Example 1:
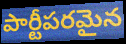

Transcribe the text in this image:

పార్టీపరమైన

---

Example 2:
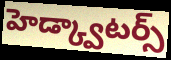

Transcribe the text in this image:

హెడ్క్వాటర్స్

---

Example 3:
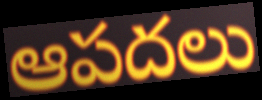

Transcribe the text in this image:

ఆపదలు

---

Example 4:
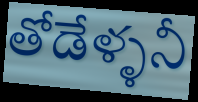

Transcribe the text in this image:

తోడేళ్ళనీ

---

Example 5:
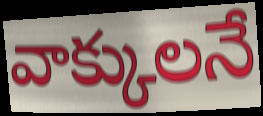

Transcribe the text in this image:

వాక్కులనే